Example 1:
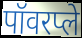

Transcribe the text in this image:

पॉवरप्ले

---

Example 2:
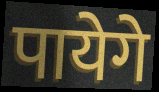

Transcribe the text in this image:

पायेगे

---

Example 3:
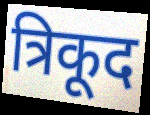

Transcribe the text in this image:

त्रिकूद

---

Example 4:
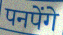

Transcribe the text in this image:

पनपेंगे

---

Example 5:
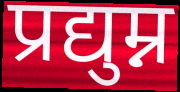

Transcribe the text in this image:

प्रद्युम्न